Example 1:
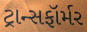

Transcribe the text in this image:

ટ્રાન્સફૉર્મર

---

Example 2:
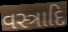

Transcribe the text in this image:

વસ્ત્રાદિ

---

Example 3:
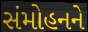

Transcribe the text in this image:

સંમોહનને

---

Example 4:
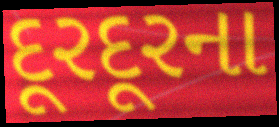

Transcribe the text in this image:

દૂરદૂરના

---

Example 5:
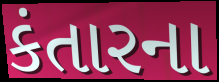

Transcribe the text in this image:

કંતારના